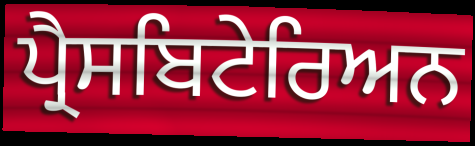
ਪ੍ਰੈਸਬਿਟੇਰਿਅਨ